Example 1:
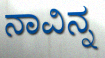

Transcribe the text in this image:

ನಾವಿನ್ನ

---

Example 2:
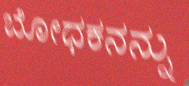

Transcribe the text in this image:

ಬೋಧಕನನ್ನು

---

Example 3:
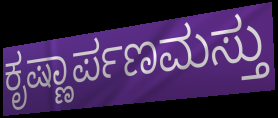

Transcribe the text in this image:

ಕೃಷ್ಣಾರ್ಪಣಮಸ್ತು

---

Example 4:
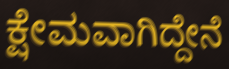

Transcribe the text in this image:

ಕ್ಷೇಮವಾಗಿದ್ದೇನೆ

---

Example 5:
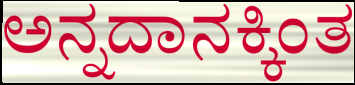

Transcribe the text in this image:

ಅನ್ನದಾನಕ್ಕಿಂತ